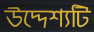
উদ্দেশ্যটি